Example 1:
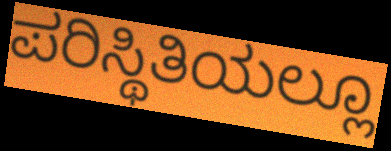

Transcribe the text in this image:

ಪರಿಸ್ಥಿತಿಯಲ್ಲೂ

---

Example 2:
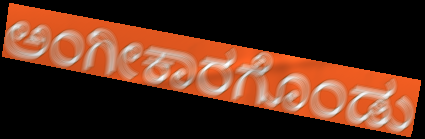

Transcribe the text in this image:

ಅಂಗೀಕಾರಗೊಂಡು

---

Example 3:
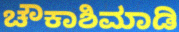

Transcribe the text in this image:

ಚೌಕಾಶಿಮಾಡಿ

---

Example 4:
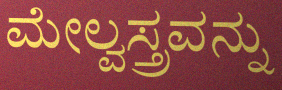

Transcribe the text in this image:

ಮೇಲ್ವಸ್ತ್ರವನ್ನು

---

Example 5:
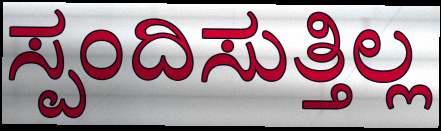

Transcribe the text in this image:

ಸ್ಪಂದಿಸುತ್ತಿಲ್ಲ